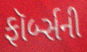
ફૉર્બ્સની